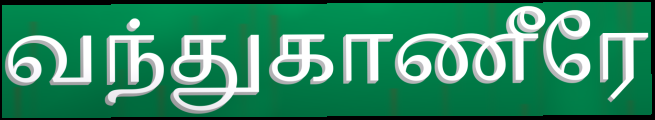
வந்துகாணீரே